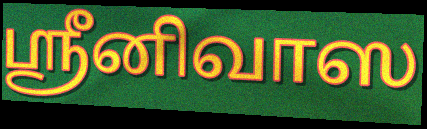
ஸ்ரீனிவாஸ